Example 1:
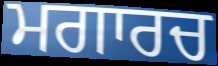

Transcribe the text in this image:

ਮਗਾਰਚ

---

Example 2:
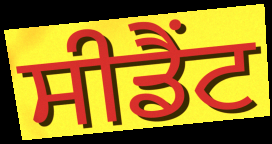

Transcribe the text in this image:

ਸੀਡੈਂਟ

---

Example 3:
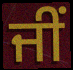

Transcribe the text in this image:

ਜੀਂ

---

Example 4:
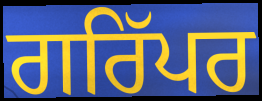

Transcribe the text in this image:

ਗਰਿੱਪਰ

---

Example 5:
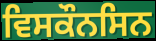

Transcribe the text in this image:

ਵਿਸਕੌਨਸਿਨ